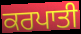
ਕਰਪਾਤੀ